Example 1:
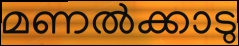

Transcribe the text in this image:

മണൽക്കാടു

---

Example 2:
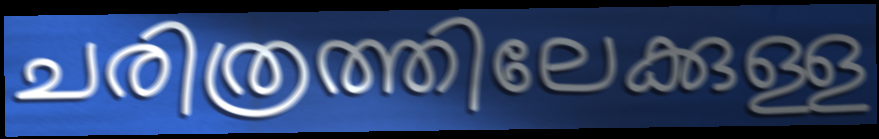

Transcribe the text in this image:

ചരിത്രത്തിലേക്കുള്ള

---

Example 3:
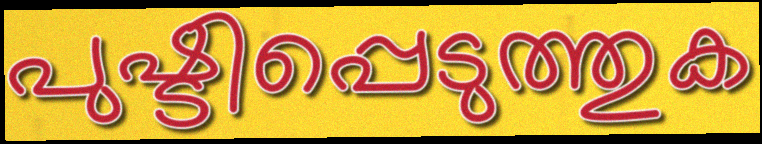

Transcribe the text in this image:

പുഷ്ടിപ്പെടുത്തുക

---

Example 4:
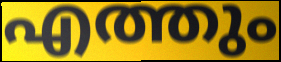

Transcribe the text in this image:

എത്തും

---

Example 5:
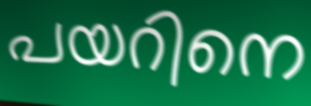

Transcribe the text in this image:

പയറിനെ